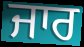
ਜਾਰ